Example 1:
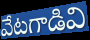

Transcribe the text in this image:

వేటగాడివి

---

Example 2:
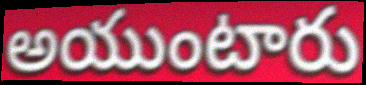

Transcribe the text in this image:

అయుంటారు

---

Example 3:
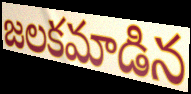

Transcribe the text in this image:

జలకమాడిన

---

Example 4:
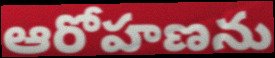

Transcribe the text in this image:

ఆరోహణను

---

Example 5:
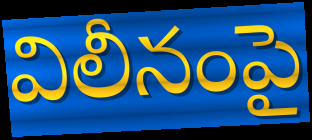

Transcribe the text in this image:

విలీనంపై